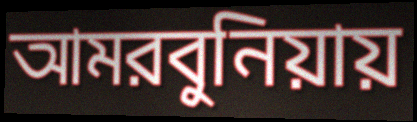
আমরবুনিয়ায়